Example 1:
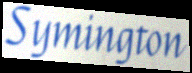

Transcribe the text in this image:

Symington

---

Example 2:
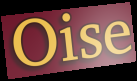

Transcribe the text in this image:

Oise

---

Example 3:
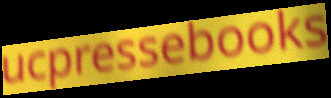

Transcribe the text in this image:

ucpressebooks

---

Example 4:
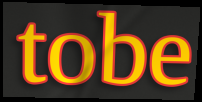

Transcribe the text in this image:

tobe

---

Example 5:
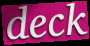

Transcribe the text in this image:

deck